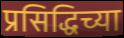
प्रसिद्धिच्या